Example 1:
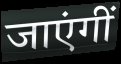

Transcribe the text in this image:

जाएंगीं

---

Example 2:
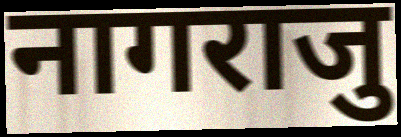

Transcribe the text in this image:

नागराजु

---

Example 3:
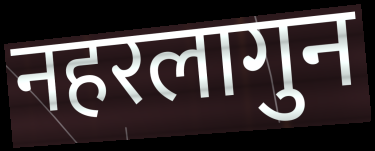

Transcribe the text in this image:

नहरलागुन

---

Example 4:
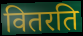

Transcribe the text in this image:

वितरति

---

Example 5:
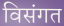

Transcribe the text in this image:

विसंगत